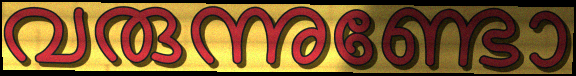
വരുന്നുണ്ടോ